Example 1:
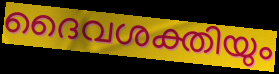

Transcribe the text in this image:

ദൈവശക്തിയും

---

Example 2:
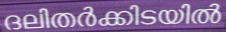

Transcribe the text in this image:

ദലിതർക്കിടയിൽ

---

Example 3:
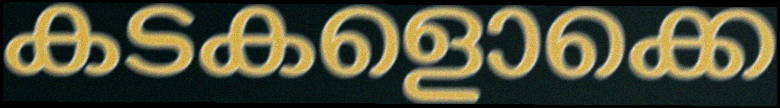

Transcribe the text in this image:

കടകളൊക്കെ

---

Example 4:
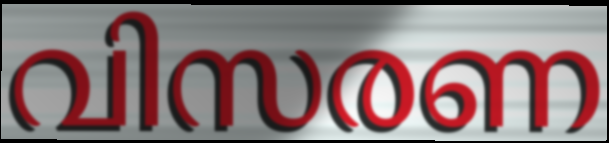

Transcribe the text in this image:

വിസരണ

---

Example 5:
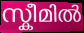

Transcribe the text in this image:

സ്കീമിൽ